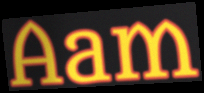
Aam